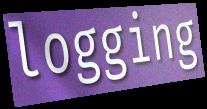
logging